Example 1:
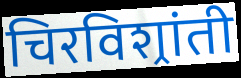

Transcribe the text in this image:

चिरविश्रांती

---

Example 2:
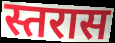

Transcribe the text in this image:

स्तरास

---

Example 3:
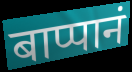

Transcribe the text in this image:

बाप्पानं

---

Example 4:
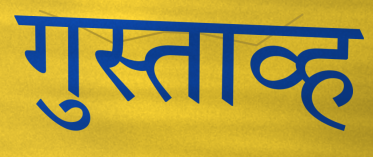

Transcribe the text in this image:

गुस्ताव्ह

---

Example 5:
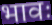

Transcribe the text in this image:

भावः